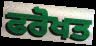
ਫਰੋਖਤ